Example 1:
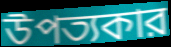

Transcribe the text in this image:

উপত্যকার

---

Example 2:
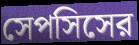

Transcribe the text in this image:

সেপসিসের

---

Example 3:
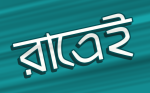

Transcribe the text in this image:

রাত্রেই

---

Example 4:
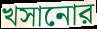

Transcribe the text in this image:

খসানোর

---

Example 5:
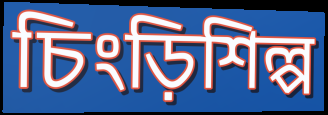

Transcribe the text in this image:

চিংড়িশিল্প